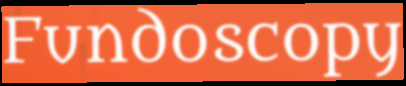
Fundoscopy